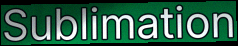
Sublimation